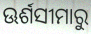
ଊର୍ଶସୀମାରୁ